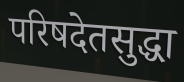
परिषदेतसुद्धा